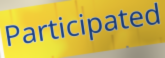
Participated